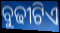
ବୁଢୀଟିଏ